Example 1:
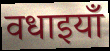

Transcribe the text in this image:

वधाइयाँ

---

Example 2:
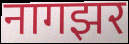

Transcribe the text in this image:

नागझर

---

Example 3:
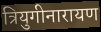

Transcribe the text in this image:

त्रियुगीनारायण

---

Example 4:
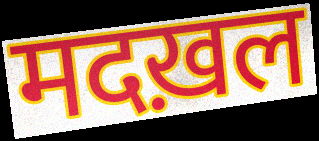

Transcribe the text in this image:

मदख़ल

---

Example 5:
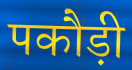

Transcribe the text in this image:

पकौड़ी